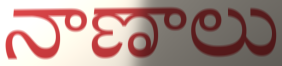
నాణాలు